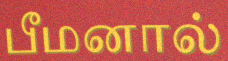
பீமனால்